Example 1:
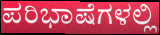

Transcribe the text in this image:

ಪರಿಭಾಷೆಗಳಲ್ಲಿ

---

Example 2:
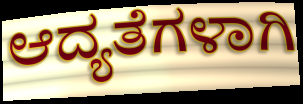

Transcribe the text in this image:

ಆದ್ಯತೆಗಳಾಗಿ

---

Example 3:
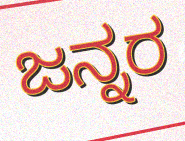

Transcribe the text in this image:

ಜನ್ನರ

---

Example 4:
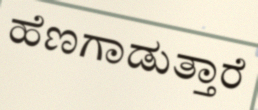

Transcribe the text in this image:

ಹೆಣಗಾಡುತ್ತಾರೆ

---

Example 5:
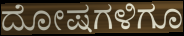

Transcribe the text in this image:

ದೋಷಗಳಿಗೂ